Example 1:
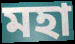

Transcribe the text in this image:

মহা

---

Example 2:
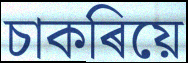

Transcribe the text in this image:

চাকৰিয়ে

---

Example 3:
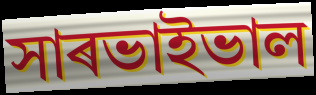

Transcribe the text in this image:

সাৰভাইভাল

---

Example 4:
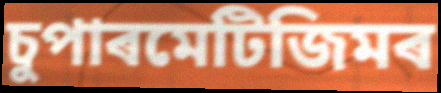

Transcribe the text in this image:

চুপাৰমেটিজিমৰ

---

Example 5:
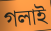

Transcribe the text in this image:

গলাই